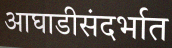
आघाडीसंदर्भात